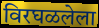
विरघळलेला